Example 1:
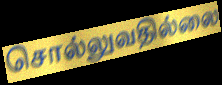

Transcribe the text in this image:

சொல்லுவதில்லை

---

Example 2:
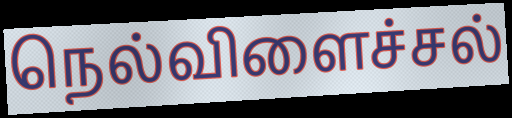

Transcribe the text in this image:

நெல்விளைச்சல்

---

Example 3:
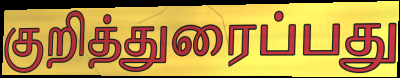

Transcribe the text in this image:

குறித்துரைப்பது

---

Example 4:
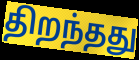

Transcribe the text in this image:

திறந்தது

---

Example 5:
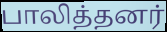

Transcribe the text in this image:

பாலித்தனர்